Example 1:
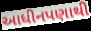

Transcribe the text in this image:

આધીનપણાથી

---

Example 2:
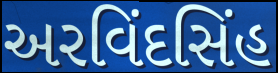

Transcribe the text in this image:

અરવિંદસિંહ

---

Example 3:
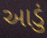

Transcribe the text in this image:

આડું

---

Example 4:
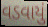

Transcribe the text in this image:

વડવાયું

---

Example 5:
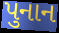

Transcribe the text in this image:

પુનાન